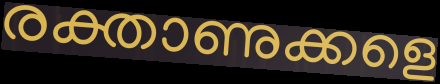
രക്താണുക്കളെ